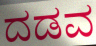
ದಡವ